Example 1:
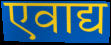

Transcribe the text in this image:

एवाद्य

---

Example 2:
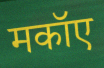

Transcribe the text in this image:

मकॉए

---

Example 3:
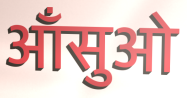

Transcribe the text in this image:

आँसुओ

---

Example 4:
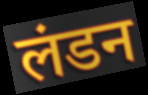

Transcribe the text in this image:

लंडन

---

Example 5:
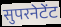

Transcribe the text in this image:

सुपरनेटेंट